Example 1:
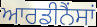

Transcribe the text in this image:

ਆਰਡੀਨੈਂਸਾਂ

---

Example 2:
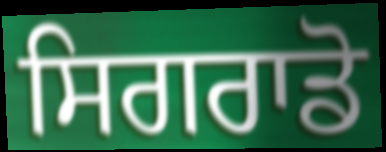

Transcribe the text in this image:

ਸਿਗਰਾਡੋ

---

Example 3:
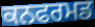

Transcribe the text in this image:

ਕਨਫਰਮਡ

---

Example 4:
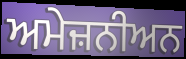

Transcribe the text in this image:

ਅਮੇਜ਼ਨੀਅਨ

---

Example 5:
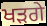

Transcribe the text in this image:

ਖੜਗੇ